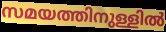
സമയത്തിനുള്ളിൽ